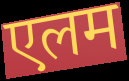
एलम